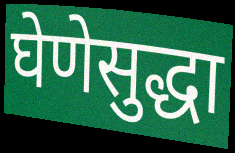
घेणेसुद्धा